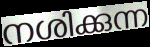
നശിക്കുന്ന